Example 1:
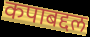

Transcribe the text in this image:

कपाबद्दल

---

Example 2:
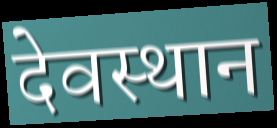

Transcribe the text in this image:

देवस्थान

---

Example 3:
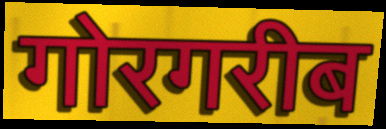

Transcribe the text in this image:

गोरगरीब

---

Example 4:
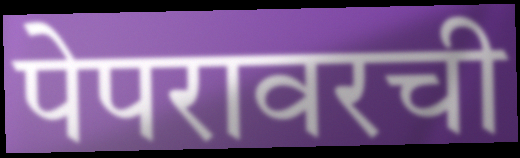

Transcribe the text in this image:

पेपरावरची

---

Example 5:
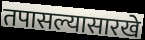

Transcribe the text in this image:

तपासल्यासारखे